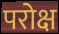
परोक्ष